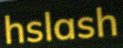
hslash